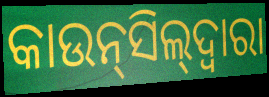
କାଉନ୍‌ସିଲ୍‌ଦ୍ବାରା